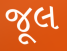
જૂલ